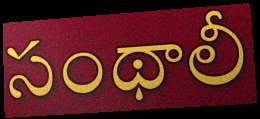
సంథాలీ